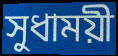
সুধাময়ী